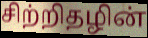
சிற்றிதழின்